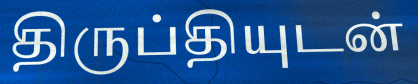
திருப்தியுடன்